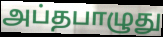
அப்தபாழுது